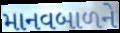
માનવબાળને